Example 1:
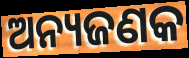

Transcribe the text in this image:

ଅନ୍ୟଜଣକ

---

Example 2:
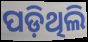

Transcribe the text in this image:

ପଡ଼ିଥିଲି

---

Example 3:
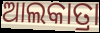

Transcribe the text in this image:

ଆଲକାତ୍ରା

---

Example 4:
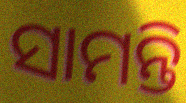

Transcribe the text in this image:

ସାମନ୍ତି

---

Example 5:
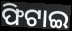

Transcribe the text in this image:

ଫିଟାଇ